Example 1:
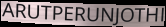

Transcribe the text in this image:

ARUTPERUNJOTHI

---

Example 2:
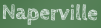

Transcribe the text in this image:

Naperville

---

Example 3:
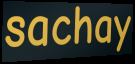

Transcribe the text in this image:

sachay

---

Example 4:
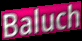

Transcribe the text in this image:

Baluch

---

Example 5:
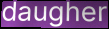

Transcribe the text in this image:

daugher